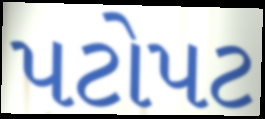
પટોપટ